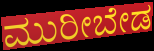
ಮುರೀಬೇಡ